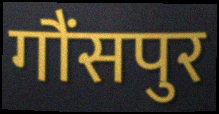
गौंसपुर